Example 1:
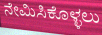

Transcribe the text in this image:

ನೇಮಿಸಿಕೊಳ್ಳಲು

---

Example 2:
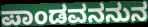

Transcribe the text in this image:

ಪಾಂಡವನನುನ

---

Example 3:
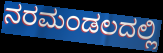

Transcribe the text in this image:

ನರಮಂಡಲದಲ್ಲಿ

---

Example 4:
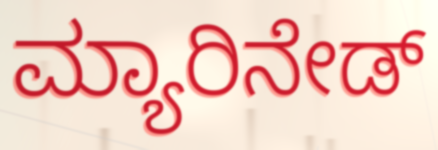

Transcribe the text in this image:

ಮ್ಯಾರಿನೇಡ್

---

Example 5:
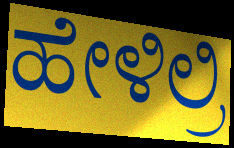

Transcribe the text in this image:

ಹೇಳಿಲ್ರಿ